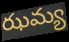
ఝమ్య